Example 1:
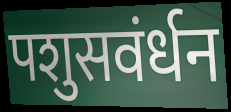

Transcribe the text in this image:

पशुसवंर्धन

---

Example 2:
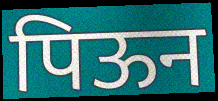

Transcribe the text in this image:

पिऊन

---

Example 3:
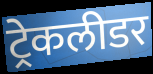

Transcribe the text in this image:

ट्रेकलीडर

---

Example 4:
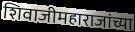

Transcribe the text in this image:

शिवाजीमहाराजांच्या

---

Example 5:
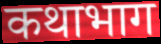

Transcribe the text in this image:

कथाभाग